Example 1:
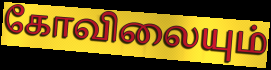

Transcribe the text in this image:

கோவிலையும்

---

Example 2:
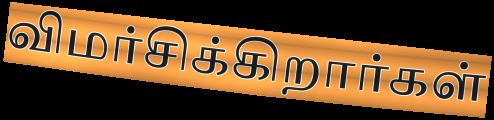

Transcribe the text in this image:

விமர்சிக்கிறார்கள்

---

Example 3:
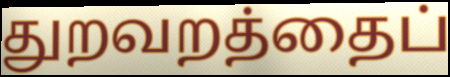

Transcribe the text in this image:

துறவறத்தைப்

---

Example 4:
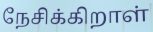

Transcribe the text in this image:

நேசிக்கிறாள்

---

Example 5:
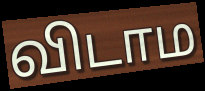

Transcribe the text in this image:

விடாம